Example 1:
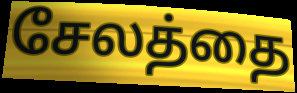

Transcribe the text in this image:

சேலத்தை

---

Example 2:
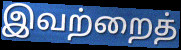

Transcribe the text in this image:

இவற்றைத்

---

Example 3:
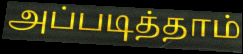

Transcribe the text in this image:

அப்படித்தாம்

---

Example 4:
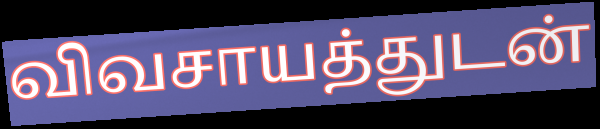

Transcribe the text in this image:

விவசாயத்துடன்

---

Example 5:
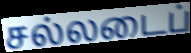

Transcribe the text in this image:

சல்லடைப்